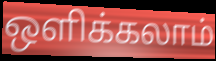
ஒளிக்கலாம்